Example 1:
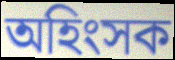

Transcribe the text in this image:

অহিংসক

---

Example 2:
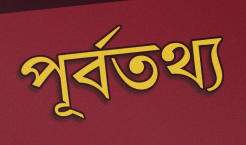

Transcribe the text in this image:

পূর্বতথ্য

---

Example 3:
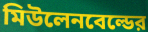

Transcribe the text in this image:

মিউলেনবেল্ডের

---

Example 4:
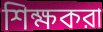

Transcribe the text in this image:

শিক্ষকরা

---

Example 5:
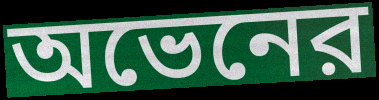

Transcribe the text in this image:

অভেনের